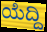
ಯೆದ್ದಿ